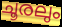
ചൂരലും